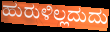
ಹುರುಳಿಲ್ಲದುದು